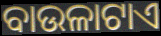
ବାଉଳାଟାଏ